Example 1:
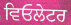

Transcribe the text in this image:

ਵਿਓਲੇਟਰ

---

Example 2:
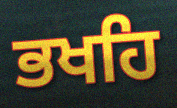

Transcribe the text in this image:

ਭਖਹਿ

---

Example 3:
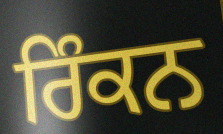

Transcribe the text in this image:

ਰਿੰਕਨ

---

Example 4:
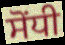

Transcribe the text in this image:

ਸੋਂਧੀ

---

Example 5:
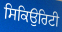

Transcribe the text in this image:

ਸਿਕਿਉਰਿਟੀ